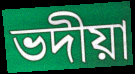
ভদীয়া